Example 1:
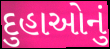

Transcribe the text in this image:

દુહાઓનું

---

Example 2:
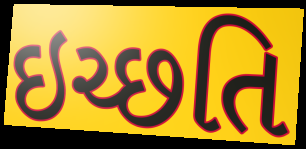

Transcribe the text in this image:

ઇચ્છતિ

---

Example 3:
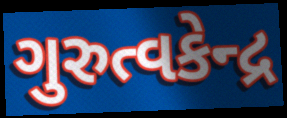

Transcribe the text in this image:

ગુરુત્વકેન્દ્ર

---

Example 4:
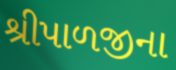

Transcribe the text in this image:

શ્રીપાળજીના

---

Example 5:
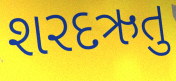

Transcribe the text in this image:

શરદઋતુ